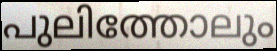
പുലിത്തോലും